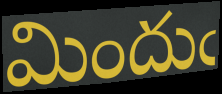
మిందుఁ